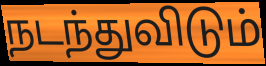
நடந்துவிடும்